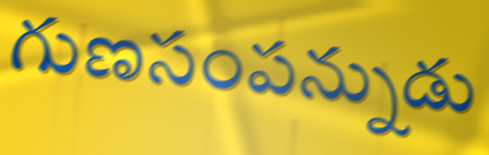
గుణసంపన్నుడు